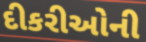
દીકરીઓની